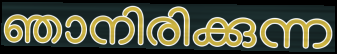
ഞാനിരിക്കുന്ന